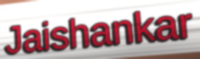
Jaishankar